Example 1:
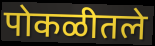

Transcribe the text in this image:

पोकळीतले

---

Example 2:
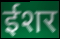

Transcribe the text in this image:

ईशर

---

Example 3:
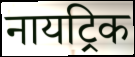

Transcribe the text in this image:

नायट्रिक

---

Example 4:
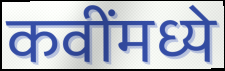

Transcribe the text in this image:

कवींमध्ये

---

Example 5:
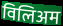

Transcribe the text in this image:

विलिअम